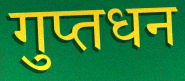
गुप्तधन